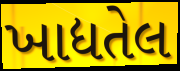
ખાદ્યતેલ